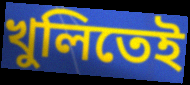
খুলিতেই